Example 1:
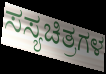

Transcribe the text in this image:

ಸಸ್ಯಚಿತ್ರಗಳ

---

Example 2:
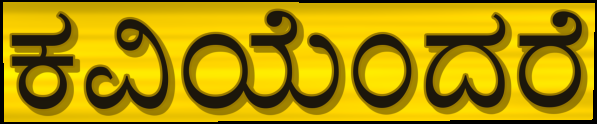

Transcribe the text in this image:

ಕವಿಯೆಂದರೆ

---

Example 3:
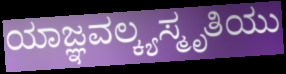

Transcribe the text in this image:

ಯಾಜ್ಞವಲ್ಕ್ಯಸ್ಮೃತಿಯು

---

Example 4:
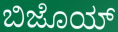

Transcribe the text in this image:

ಬಿಜೊಯ್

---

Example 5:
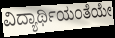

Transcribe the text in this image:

ವಿದ್ಯಾರ್ಥಿಯಂತೆಯೇ